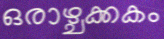
ഒരാഴ്ചക്കകം